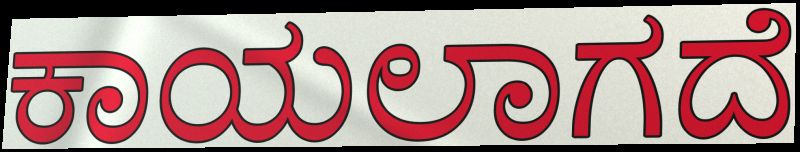
ಕಾಯಲಾಗದೆ